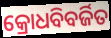
କ୍ରୋଧବିବର୍ଜିତ